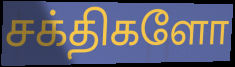
சக்திகளோ